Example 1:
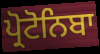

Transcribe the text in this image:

ਪ੍ਰੋਟੋਨਿਬਾ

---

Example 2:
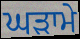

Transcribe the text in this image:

ਘੜਾਮੇ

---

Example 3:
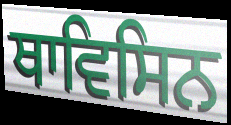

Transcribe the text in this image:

ਥਾਵਿਸਿਨ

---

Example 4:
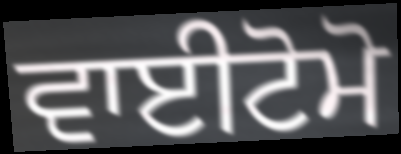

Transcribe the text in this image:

ਵਾਈਟੋਮੋ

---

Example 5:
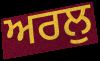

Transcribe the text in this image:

ਅਰਲੁ